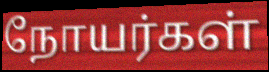
நோயர்கள்